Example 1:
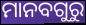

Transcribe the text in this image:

ମାନବଗୁରୁ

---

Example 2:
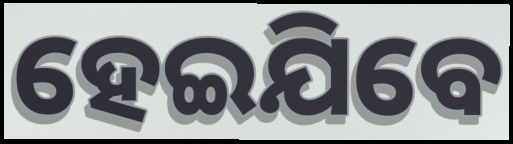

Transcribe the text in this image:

ହେଇଯିବେ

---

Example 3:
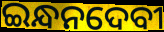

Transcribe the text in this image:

ଇନ୍ଧନଦେବୀ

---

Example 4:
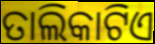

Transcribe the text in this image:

ତାଲିକାଟିଏ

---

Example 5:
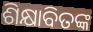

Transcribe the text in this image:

ଶିକ୍ଷାବିତଙ୍କ